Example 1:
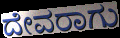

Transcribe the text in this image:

ದೇವರಾಗು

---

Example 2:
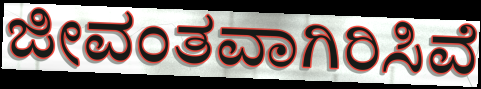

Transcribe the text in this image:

ಜೀವಂತವಾಗಿರಿಸಿವೆ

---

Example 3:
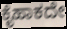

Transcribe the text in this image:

ಕೈಹಾಕದೇ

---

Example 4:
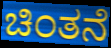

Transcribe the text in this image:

ಚಿಂತನೆ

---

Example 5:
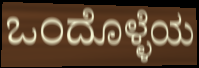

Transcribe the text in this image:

ಒಂದೊಳ್ಳೆಯ